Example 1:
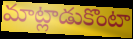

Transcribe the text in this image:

మాట్లాడుకొంటా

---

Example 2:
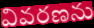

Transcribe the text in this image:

వివరణను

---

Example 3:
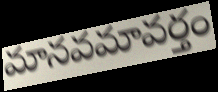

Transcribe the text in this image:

మానవమావర్తం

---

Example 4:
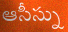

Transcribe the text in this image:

ఆసీస్ను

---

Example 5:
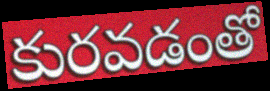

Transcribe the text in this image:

కురవడంతో